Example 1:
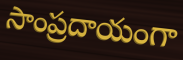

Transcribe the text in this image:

సాంప్రదాయంగా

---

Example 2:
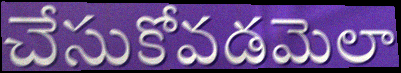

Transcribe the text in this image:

చేసుకోవడమెలా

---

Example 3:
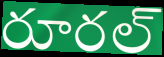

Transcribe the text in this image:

రూరల్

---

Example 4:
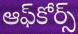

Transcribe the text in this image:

ఆఫ్‌కోర్స్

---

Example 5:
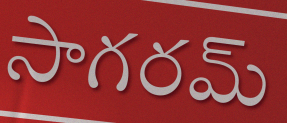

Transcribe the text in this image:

సాగరమ్